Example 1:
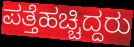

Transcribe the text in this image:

ಪತ್ತೆಹಚ್ಚಿದ್ದರು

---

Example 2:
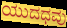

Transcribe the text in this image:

ಯುದಧವು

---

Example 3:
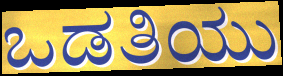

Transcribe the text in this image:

ಒಡತಿಯು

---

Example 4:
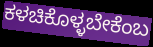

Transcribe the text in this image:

ಕಳಚಿಕೊಳ್ಳಬೇಕೆಂಬ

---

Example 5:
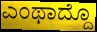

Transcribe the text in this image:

ಎಂಥಾದ್ದೊ